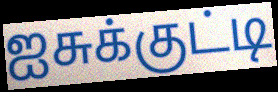
ஐசுக்குட்டி